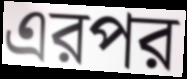
এরপর